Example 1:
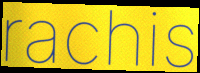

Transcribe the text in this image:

rachis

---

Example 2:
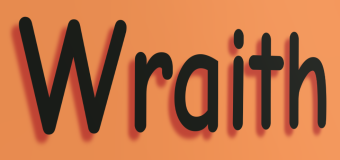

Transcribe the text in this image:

Wraith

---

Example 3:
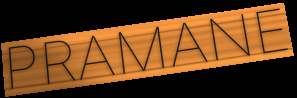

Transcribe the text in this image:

PRAMANE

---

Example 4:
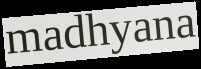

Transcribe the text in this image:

madhyana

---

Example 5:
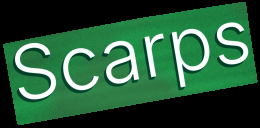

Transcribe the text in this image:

Scarps